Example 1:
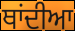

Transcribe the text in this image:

ਥਾਂਦੀਆ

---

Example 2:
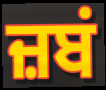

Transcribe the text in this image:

ਜ਼ਬਂ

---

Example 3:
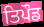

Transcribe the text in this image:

ਤਿਪੌਡ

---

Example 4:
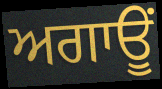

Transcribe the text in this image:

ਅਗਾਊੂਂ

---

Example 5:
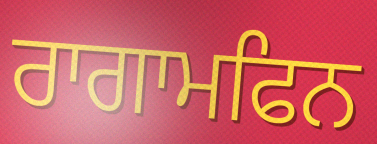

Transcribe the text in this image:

ਰਾਗਾਮਫਿਨ